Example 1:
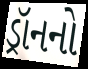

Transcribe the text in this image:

ડ્રૉનનો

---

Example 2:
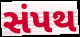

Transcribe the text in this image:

સંપથ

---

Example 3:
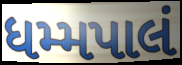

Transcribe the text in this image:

ધમ્મપાલં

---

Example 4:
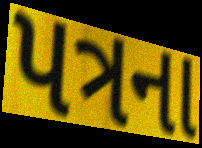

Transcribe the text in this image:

પત્રના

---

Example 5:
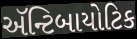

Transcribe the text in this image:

ઍન્ટિબાયોટિક